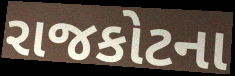
રાજકોટના